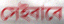
সেইবাবে